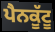
ਪੈਨਕੂੱਟੂ